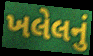
ખલેલનું